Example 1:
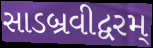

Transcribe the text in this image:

સાડબ્રવીદ્વરમ્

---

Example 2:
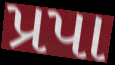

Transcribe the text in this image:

પ્રપા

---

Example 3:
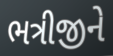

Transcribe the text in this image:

ભત્રીજીને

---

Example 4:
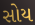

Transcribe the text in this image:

સોય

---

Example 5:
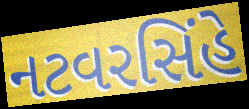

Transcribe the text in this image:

નટવરસિંહે